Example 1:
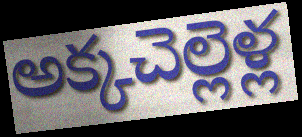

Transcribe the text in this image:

అక్కచెల్లెళ్ల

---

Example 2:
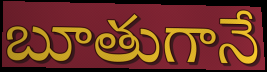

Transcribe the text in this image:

బూతుగానే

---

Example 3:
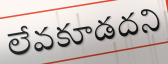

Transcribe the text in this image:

లేవకూడదని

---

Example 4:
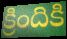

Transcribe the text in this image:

క్రిందికి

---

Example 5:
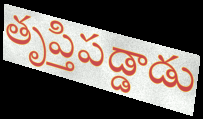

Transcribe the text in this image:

తృప్తిపడ్డాడు